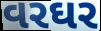
વરઘર